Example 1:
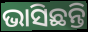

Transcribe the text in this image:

ଭାସିଛନ୍ତି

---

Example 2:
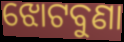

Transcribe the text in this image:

ଝୋଟବୁଣା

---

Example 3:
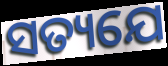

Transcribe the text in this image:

ସତ୍ୟଯେ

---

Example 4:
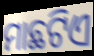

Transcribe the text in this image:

ମାଛଟିଏ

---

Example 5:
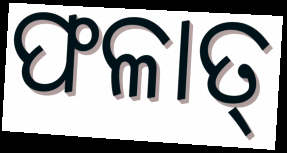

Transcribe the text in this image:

ଫଳାତ୍